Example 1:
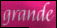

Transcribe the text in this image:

grande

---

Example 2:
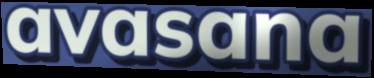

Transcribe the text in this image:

avasana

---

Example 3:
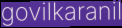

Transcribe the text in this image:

govilkaranil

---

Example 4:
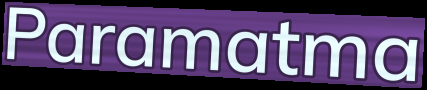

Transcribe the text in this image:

Paramatma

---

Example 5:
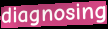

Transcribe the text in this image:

diagnosing